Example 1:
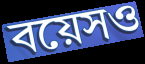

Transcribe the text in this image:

বয়েসও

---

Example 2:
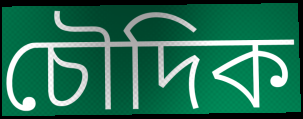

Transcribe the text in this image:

চৌদিক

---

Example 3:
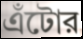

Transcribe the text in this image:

এঁটোর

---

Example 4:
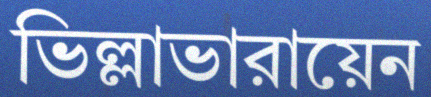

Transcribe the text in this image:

ভিল্লাভারায়েন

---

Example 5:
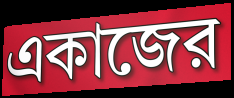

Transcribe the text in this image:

একাজের